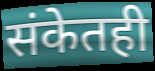
संकेतही